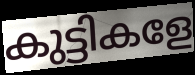
കുട്ടികളേ